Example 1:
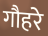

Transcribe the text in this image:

गौहरे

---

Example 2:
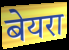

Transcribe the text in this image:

बेयरा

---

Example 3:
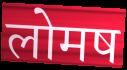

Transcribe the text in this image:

लोमष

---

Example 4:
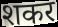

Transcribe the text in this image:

शकर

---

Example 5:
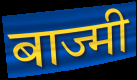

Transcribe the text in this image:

बाज्मी